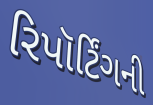
રિપૉર્ટિંગની